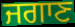
ਜਗਾਣ